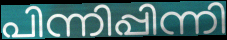
പിന്നിപ്പിന്നി